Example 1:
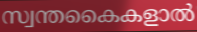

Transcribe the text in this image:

സ്വന്തകൈകളാൽ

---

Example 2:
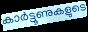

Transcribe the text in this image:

കാർട്ടൂണുകളുടെ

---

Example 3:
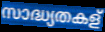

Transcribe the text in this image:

സാദ്ധ്യതകള്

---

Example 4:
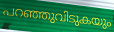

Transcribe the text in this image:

പറഞ്ഞുവിടുകയും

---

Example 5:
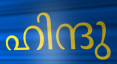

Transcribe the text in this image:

ഹിന്ദു